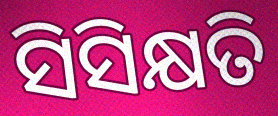
ସିସିକ୍ଷତି